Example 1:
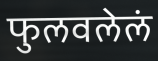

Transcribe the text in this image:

फुलवलेलं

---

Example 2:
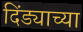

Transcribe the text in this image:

दिंड्याच्या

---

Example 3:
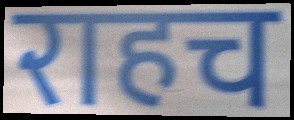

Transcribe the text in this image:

राहच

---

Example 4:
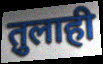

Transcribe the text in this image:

तुलाही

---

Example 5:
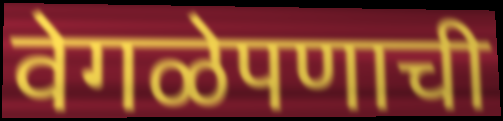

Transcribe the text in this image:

वेगळेपणाची